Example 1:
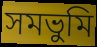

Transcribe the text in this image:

সমভুমি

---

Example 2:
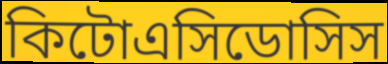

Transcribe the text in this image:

কিটোএসিডোসিস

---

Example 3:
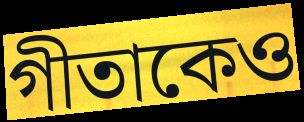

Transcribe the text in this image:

গীতাকেও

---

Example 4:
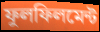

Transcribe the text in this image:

ফুলফিলমেন্ট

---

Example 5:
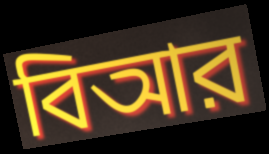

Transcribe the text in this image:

বিআর